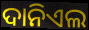
ଦାନିଏଲ